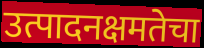
उत्पादनक्षमतेचा